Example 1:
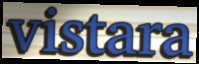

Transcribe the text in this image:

vistara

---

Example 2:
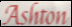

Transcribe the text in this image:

Ashton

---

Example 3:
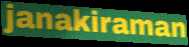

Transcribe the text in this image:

janakiraman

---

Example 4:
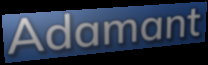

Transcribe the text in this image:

Adamant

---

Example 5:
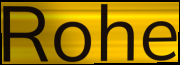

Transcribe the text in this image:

Rohe